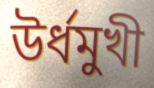
উর্ধমুখী